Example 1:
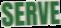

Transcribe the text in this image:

SERVE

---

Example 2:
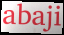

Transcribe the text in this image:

abaji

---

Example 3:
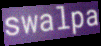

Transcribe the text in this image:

swalpa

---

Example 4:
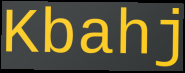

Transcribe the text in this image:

Kbahj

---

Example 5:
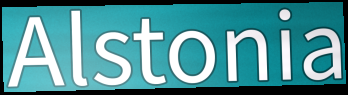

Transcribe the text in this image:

Alstonia